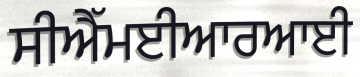
ਸੀਐੱਮਈਆਰਆਈ